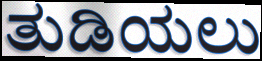
ತುಡಿಯಲು